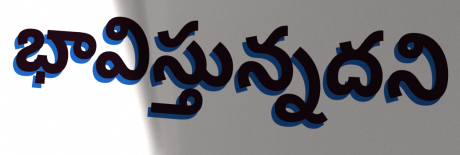
భావిస్తున్నదని